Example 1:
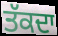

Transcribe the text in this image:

ਤੱਕਦਾ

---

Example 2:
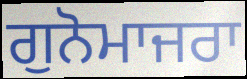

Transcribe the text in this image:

ਗੁਨੋਮਾਜਰਾ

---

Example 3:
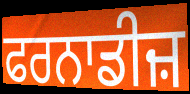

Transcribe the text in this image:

ਫਰਨਾਡੀਜ਼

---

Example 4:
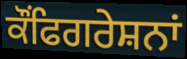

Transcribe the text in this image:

ਕੌਂਫਿਗਰੇਸ਼ਨਾਂ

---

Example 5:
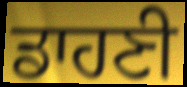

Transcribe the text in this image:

ਡਾਹਣੀ